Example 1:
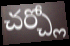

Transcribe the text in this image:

చర్చ్లో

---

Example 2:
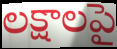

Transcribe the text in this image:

లక్షాలపై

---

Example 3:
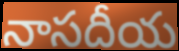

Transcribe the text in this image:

నాసదీయ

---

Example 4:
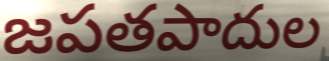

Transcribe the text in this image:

జపతపాదుల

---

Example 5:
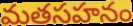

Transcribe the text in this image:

మతసహనం